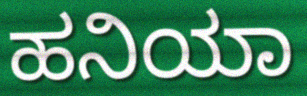
ಹನಿಯಾ